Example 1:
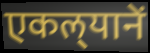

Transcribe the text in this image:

एकल्यानें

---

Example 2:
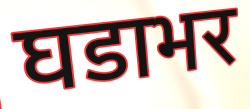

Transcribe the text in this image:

घडाभर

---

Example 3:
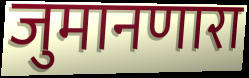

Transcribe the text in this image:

जुमानणारा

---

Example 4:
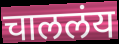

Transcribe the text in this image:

चाललंय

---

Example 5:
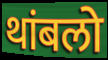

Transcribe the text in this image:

थांबलो